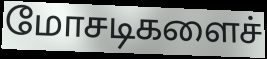
மோசடிகளைச்